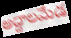
అద్దాలమేడ